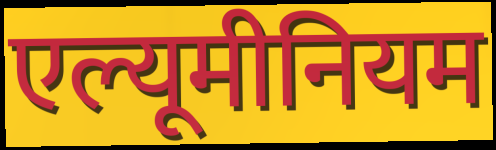
एल्‍यूमीनियम